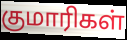
குமாரிகள்